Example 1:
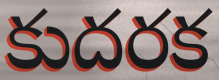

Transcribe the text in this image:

కుదరక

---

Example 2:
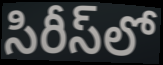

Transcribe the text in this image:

సిరీస్‌లో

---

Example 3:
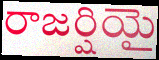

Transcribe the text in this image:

రాజర్షియై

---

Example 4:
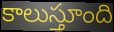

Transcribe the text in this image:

కాలుస్తూంది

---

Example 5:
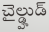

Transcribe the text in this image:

చైల్డ్హుడ్